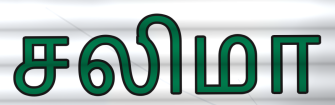
சலிமா